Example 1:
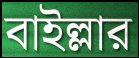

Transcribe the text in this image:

বাইল্লার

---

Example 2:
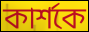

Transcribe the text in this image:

কার্শকে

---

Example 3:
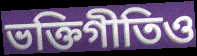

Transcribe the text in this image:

ভক্তিগীতিও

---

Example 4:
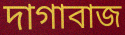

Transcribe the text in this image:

দাগাবাজ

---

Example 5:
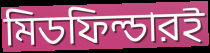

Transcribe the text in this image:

মিডফিল্ডারই